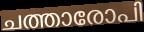
ചത്താരോപി